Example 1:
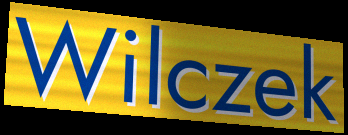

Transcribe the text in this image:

Wilczek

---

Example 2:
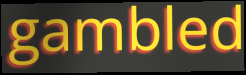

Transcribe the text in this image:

gambled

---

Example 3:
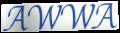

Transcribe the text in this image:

AWWA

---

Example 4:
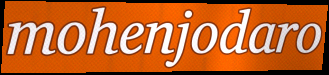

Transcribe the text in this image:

mohenjodaro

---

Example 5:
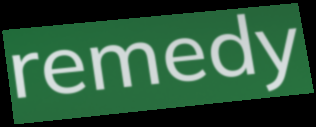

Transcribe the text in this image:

remedy